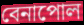
বেনাপোল